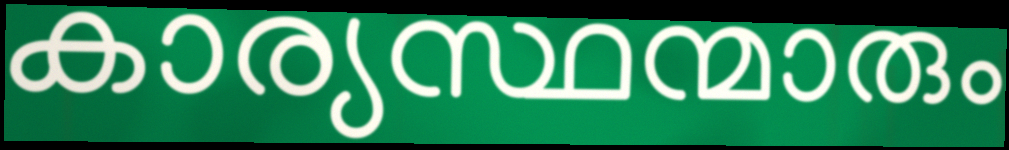
കാര്യസ്ഥന്മാരും